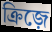
ক্রিজ়ে